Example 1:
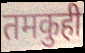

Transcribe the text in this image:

तमकुही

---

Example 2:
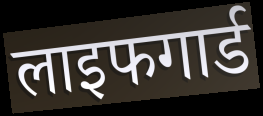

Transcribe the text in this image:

लाइफगार्ड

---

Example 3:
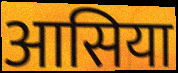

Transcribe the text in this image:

आसिया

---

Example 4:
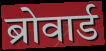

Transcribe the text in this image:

ब्रोवार्ड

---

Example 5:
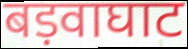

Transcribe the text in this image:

बड़वाघाट